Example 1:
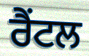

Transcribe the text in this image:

ਰੈਂਟਲ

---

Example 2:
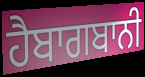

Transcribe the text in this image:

ਹੈਬਾਗਬਾਨੀ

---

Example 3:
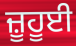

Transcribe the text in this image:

ਜ਼ੂਹੂਈ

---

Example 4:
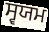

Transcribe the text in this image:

ਸ੍ਵਯਮ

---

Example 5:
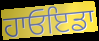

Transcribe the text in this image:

ਹਾਓਇਡਾ